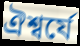
ঐশ্বর্যে